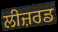
ਲੀਜ਼ਰਡ